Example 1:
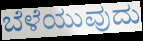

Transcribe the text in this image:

ಬೆಳೆಯುವುದು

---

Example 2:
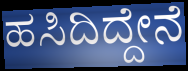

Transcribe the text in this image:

ಹಸಿದಿದ್ದೇನೆ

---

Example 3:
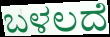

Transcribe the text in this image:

ಬಳಲದೆ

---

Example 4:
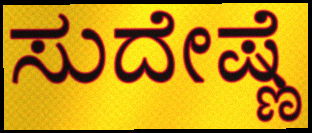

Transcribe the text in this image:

ಸುದೇಷ್ಣೆ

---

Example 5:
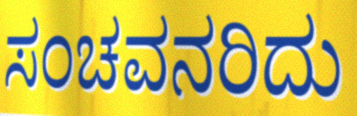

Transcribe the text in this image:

ಸಂಚವನರಿದು